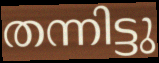
തന്നിട്ടു